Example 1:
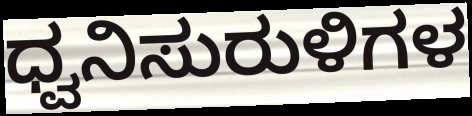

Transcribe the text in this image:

ಧ್ವನಿಸುರುಳಿಗಳ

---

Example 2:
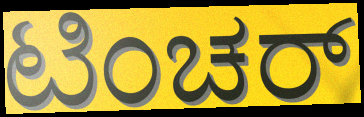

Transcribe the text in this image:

ಟಿಂಚರ್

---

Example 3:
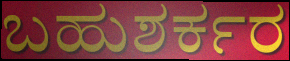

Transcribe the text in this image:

ಬಹುಶರ್ಕರ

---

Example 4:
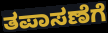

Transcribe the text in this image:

ತಪಾಸಣೆಗೆ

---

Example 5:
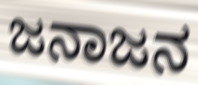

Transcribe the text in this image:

ಜನಾಜನ